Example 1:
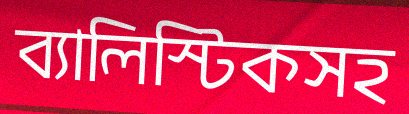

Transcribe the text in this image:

ব্যালিস্টিকসহ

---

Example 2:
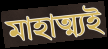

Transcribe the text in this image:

মাহাত্ম্যই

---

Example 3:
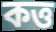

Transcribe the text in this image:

কত্ত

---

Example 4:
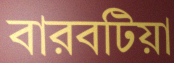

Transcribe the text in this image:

বারবটিয়া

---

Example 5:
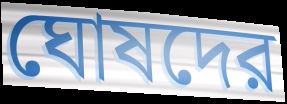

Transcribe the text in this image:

ঘোষদের